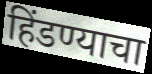
हिंडण्याचा